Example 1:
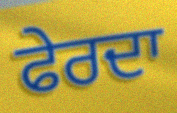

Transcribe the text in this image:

ਫੇਰਦਾ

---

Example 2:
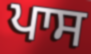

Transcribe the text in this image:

ਪਾਸ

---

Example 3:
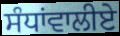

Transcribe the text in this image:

ਸੰਧਾਂਵਾਲੀਏ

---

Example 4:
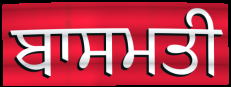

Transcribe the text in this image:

ਬਾਸਮਤੀ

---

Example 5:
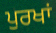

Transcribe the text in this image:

ਪੁਰਖਾਂ